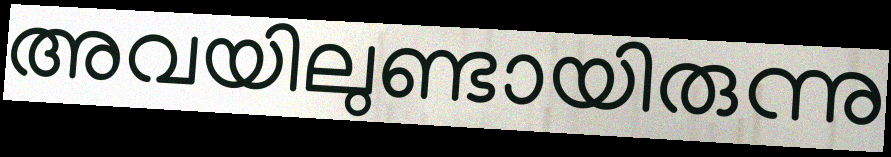
അവയിലുണ്ടായിരുന്നു